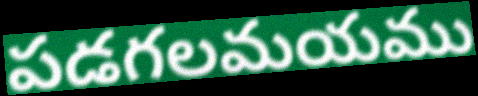
పడగలమయము